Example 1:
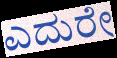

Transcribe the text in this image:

ಎದುರೇ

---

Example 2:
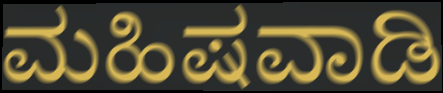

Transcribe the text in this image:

ಮಹಿಷವಾಡಿ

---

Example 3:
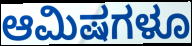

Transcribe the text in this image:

ಆಮಿಷಗಳೂ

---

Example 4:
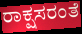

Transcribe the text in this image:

ರಾಕ್ಷಸರಂತೆ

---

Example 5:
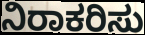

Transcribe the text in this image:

ನಿರಾಕರಿಸು